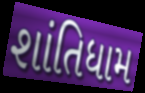
શાંતિધામ